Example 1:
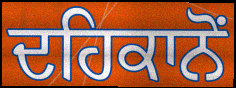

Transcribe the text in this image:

ਦਹਿਕਾਨੋਂ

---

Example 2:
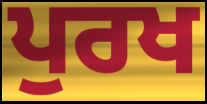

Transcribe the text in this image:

ਪੁਰਖ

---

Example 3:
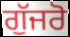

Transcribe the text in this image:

ਗੁੱਜਰੋ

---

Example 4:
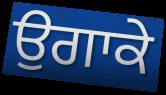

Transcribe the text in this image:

ਉਗਾਕੇ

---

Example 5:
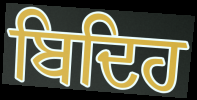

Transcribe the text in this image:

ਬਿਦਿਹ